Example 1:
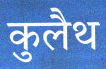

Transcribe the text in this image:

कुलैथ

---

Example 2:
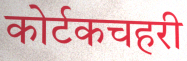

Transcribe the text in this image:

कोर्टकचहरी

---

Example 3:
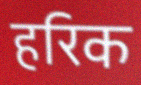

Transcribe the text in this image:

हरिक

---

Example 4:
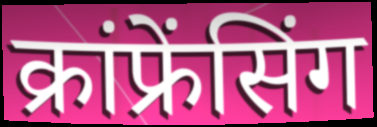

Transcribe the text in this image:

क्रांफ्रेंसिंग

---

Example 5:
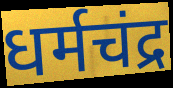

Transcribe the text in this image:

धर्मचंद्र